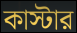
কাস্টার